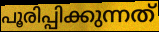
പൂരിപ്പിക്കുന്നത്